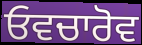
ਓਵਚਾਰੋਵ